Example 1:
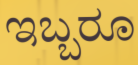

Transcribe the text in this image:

ಇಬ್ಬರೂ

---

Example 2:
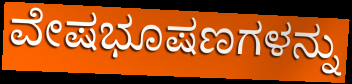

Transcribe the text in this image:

ವೇಷಭೂಷಣಗಳನ್ನು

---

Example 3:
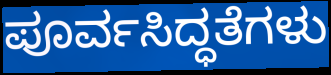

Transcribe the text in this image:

ಪೂರ್ವಸಿದ್ಧತೆಗಳು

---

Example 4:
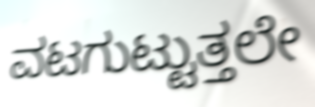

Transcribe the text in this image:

ವಟಗುಟ್ಟುತ್ತಲೇ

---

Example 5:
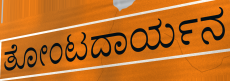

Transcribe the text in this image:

ತೋಂಟದಾರ್ಯನ